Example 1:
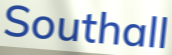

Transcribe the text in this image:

Southall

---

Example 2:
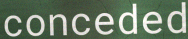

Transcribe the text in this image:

conceded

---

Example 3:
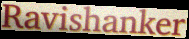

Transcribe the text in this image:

Ravishanker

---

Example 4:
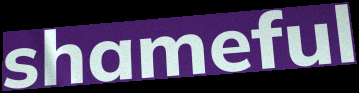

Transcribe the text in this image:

shameful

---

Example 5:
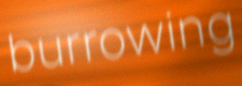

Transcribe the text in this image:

burrowing